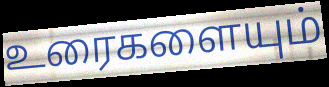
உரைகளையும்